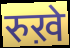
रुख़े